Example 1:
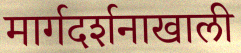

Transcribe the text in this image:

मार्गदर्शनाखाली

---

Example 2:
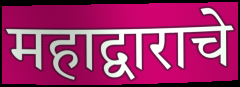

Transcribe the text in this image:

महाद्वाराचे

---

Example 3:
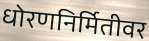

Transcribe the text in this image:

धोरणनिर्मितीवर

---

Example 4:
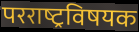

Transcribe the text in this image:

परराष्ट्रविषयक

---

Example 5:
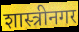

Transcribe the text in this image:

शास्त्रीनगर